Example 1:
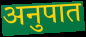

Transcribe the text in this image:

अनुपात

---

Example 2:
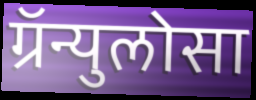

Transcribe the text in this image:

ग्रॅन्युलोसा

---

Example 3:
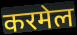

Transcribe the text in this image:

करमेल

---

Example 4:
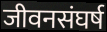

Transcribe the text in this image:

जीवनसंघर्ष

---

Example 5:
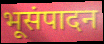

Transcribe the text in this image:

भूसंपादन